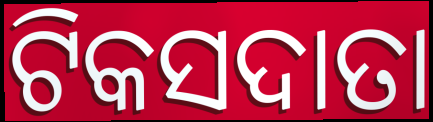
ଟିକସଦାତା